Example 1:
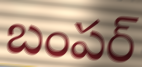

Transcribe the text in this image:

బంపర్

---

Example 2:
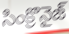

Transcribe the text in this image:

సింక్రొనైజ్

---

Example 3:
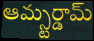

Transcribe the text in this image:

ఆమ్స్టర్డామ్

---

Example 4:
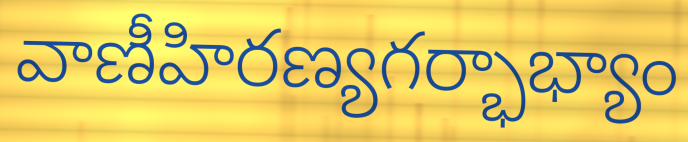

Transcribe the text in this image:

వాణీహిరణ్యగర్భాభ్యాం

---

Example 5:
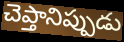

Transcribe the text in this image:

చెప్తానిప్పుడు